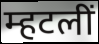
म्हटलीं